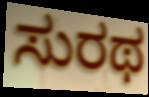
ಸುರಥ